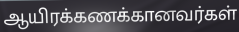
ஆயிரக்கணக்கானவர்கள்